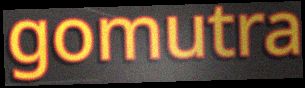
gomutra